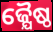
ଜ୍ଯୈଷ୍ଠ